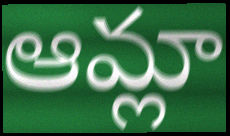
ఆమ్లా